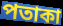
পতাকা